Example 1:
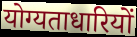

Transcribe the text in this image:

योग्यताधारियों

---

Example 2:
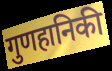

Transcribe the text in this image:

गुणहानिकी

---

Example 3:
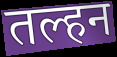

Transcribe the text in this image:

तल्हन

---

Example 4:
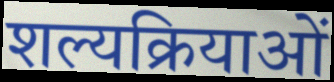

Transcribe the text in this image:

शल्यक्रियाओं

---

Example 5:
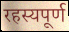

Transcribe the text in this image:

रहस्यपूर्ण